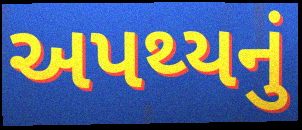
અપથ્યનું